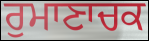
ਰੁਮਾਣਾਚਕ